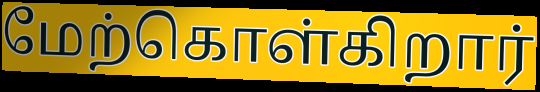
மேற்கொள்கிறார்